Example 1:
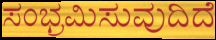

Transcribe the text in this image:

ಸಂಭ್ರಮಿಸುವುದಿದೆ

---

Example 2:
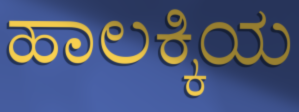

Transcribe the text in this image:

ಹಾಲಕ್ಕಿಯ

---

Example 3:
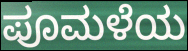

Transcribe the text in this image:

ಪೂಮಳೆಯ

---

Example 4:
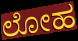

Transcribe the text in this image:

ಲೋಹ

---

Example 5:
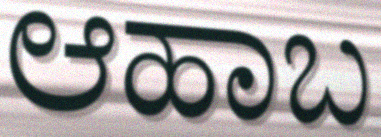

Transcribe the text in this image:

ಆಹಾಬ